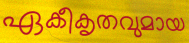
ഏകീകൃതവുമായ